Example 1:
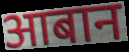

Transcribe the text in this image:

आबान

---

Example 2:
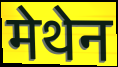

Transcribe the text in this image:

मेथेन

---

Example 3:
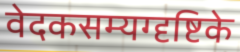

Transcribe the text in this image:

वेदकसम्यग्दृष्टिके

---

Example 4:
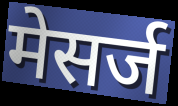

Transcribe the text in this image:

मेसर्ज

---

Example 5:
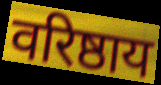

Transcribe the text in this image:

वरिष्ठाय